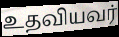
உதவியவர்